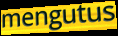
mengutus